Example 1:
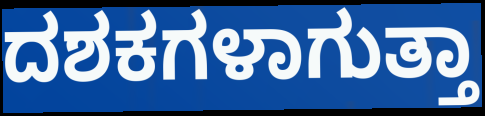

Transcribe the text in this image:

ದಶಕಗಳಾಗುತ್ತಾ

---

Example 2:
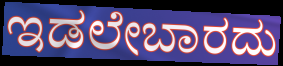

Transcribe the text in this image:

ಇಡಲೇಬಾರದು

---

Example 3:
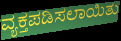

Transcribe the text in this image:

ವ್ಯಕ್ತಪಡಿಸಲಾಯಿತು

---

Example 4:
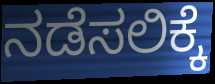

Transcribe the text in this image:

ನಡೆಸಲಿಕ್ಕೆ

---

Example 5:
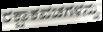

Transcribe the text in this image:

ರಕ್ಷಾಕವಚಗಳನ್ನು